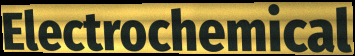
Electrochemical